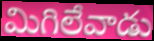
మిగిలేవాడు